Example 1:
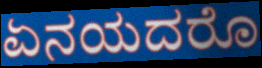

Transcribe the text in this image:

ಏನಯದರೊ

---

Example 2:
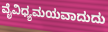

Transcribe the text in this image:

ವೈವಿಧ್ಯಮಯವಾದುದು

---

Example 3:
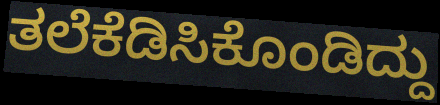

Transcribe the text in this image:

ತಲೆಕೆಡಿಸಿಕೊಂಡಿದ್ದು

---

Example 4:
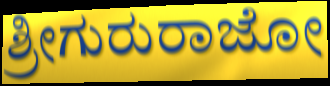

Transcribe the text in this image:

ಶ್ರೀಗುರುರಾಜೋ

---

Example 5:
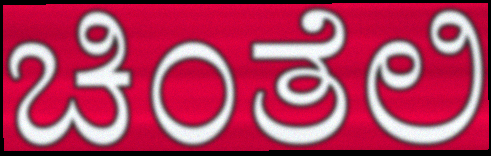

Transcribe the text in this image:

ಚಿಂತೆಲಿ